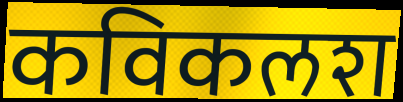
कविकलश